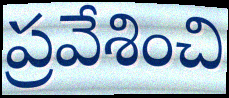
ప్రవేశించి